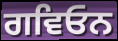
ਗਵਿਓਨ